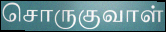
சொருகுவாள்